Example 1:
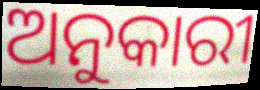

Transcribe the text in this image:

ଅନୁକାରୀ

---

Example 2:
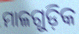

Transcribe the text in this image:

ମାଳଗୁଡ଼ିକ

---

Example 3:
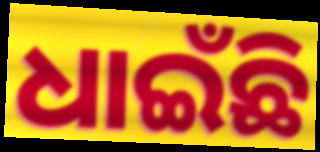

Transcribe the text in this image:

ଧାଇଁଛି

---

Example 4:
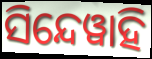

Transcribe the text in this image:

ସିନ୍ଦେୱାହି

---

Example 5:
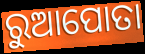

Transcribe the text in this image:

ରୁଆପୋତା